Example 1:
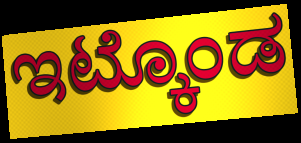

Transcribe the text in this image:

ಇಟ್ಕೊಂಡ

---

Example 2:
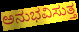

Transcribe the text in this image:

ಅನುಭವಿಸುತ್ತ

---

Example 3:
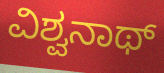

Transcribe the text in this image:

ವಿಶ್ವನಾಥ್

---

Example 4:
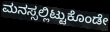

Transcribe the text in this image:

ಮನಸ್ಸಲ್ಲಿಟ್ಟುಕೊಂಡೇ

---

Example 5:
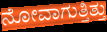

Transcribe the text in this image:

ನೋವಾಗುತ್ತಿತ್ತು